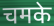
चमके